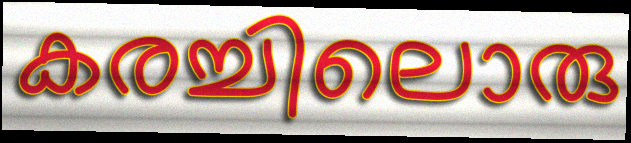
കരച്ചിലൊരു